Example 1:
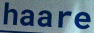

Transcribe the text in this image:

haare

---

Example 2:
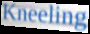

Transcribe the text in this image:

Kneeling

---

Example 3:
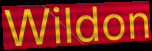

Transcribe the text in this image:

Wildon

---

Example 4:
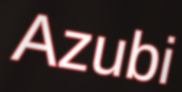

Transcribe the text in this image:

Azubi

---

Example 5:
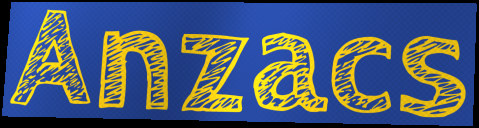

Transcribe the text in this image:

Anzacs